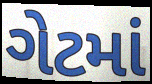
ગેટમાં